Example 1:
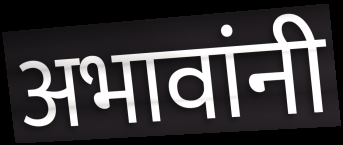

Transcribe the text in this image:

अभावांनी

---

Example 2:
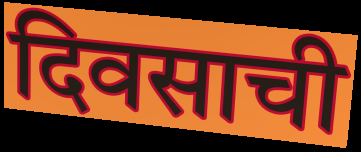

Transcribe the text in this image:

दिवसाची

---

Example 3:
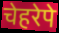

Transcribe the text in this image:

चेहरेपे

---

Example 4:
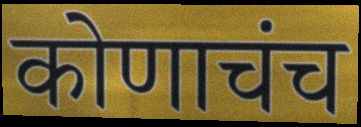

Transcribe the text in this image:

कोणाचंच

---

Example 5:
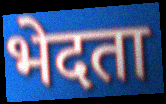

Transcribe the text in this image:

भेदता